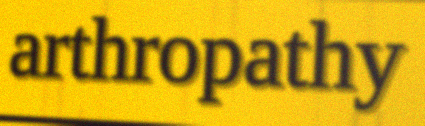
arthropathy